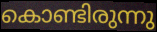
കൊണ്ടിരുന്നു